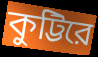
কুট্টিরে